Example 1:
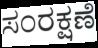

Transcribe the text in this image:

ಸಂರಕ್ಷಣೆ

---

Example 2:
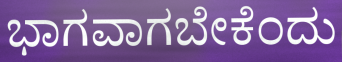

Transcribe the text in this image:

ಭಾಗವಾಗಬೇಕೆಂದು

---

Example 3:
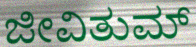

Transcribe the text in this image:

ಜೀವಿತುಮ್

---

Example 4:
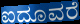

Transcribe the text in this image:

ಐದೂವರೆ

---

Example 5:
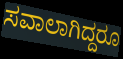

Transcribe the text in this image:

ಸವಾಲಾಗಿದ್ದರೂ